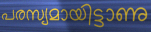
പരസ്യമായിട്ടാണു